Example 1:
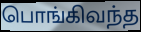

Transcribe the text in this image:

பொங்கிவந்த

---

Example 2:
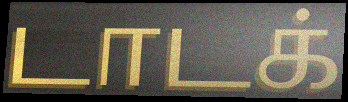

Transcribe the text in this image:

டாடக்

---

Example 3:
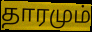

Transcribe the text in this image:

தாரமும்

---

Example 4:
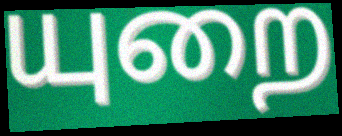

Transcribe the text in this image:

யுறை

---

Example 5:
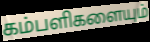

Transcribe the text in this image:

கம்பளிகளையும்